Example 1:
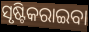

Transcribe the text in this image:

ସୃଷ୍ଟିକରାଇବା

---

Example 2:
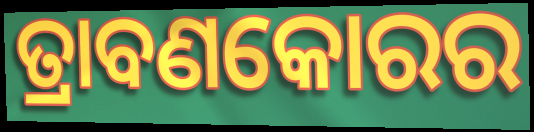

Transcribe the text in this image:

ତ୍ରାବଣକୋରର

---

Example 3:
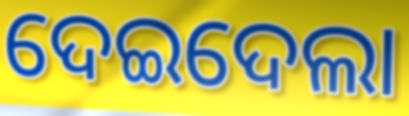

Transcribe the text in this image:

ଦେଇଦେଲା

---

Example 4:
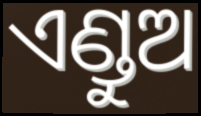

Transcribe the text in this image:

ଏଣ୍ଡୁଅ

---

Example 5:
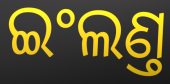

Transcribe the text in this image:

ଇଂଲଣ୍ତ